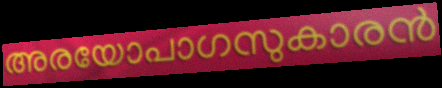
അരയോപാഗസുകാരൻ